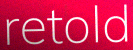
retold